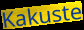
Kakuste